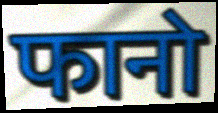
फानो